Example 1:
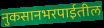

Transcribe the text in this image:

नुकसानभरपाईतील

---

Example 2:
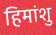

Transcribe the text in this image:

हिमांशु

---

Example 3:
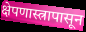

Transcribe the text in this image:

क्षेपणास्त्रापासून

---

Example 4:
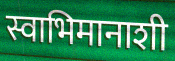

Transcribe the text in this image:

स्वाभिमानाशी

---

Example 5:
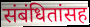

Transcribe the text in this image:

संबंधितांसह